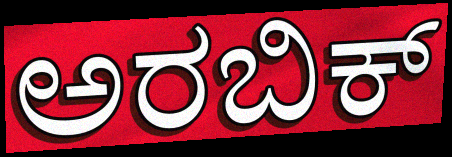
ಅರಬಿಕ್